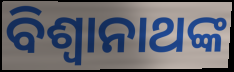
ବିଶ୍ୱାନାଥଙ୍କ